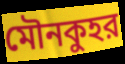
মৌনকুহর